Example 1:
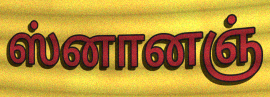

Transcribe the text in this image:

ஸ்னானஞ்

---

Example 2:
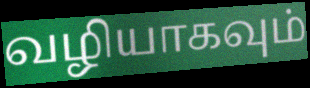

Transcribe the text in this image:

வழியாகவும்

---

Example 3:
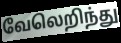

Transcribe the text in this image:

வேலெறிந்து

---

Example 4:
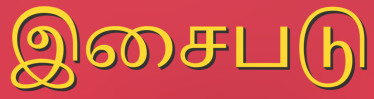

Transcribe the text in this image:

இசைபடு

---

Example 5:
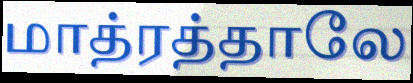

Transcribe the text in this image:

மாத்ரத்தாலே